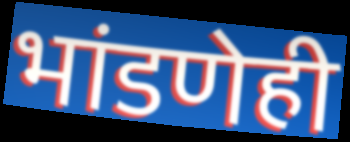
भांडणेही